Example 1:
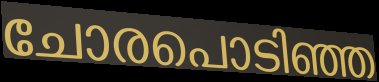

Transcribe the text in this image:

ചോരപൊടിഞ്ഞ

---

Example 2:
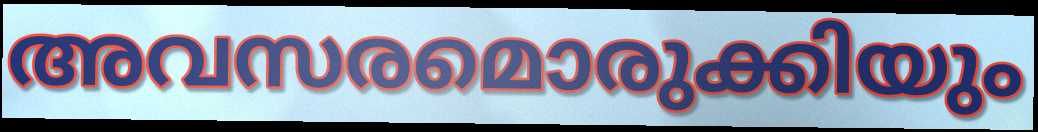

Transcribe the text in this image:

അവസരമൊരുക്കിയും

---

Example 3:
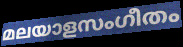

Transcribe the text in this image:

മലയാളസംഗീതം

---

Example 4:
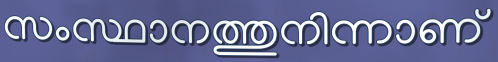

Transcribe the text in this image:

സംസ്ഥാനത്തുനിന്നാണ്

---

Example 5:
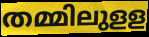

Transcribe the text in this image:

തമ്മിലുളള